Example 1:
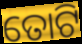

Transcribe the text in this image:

ତୋଟି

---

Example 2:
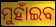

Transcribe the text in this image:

ମୁହାଁଇବ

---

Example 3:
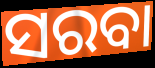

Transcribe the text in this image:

ସରବା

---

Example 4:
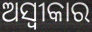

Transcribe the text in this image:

ଅସ୍ବୀକାର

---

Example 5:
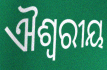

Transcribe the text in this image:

ଐଶ୍ୱରୀୟ